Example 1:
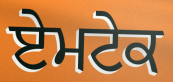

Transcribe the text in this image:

ਏਮਟੇਕ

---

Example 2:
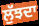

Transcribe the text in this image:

ਲੁੱਝਦਾ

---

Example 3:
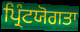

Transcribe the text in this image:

ਪ੍ਰਿੰਟਯੋਗਤਾ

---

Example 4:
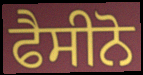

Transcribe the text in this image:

ਫੈਸੀਨੋ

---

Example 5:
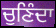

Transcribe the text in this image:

ਚੁਣਿੰਦਾ